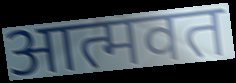
आत्मवत